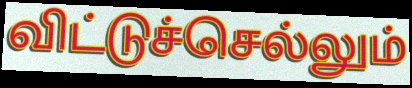
விட்டுச்செல்லும்